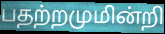
பதற்றமுமின்றி